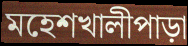
মহেশখালীপাড়া